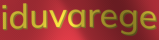
iduvarege